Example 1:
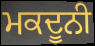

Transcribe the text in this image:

ਮਕਦੂਨੀ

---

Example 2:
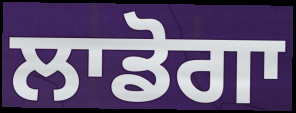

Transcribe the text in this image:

ਲਾਡੋਗਾ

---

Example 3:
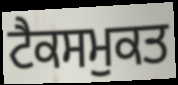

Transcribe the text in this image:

ਟੈਕਸਮੁਕਤ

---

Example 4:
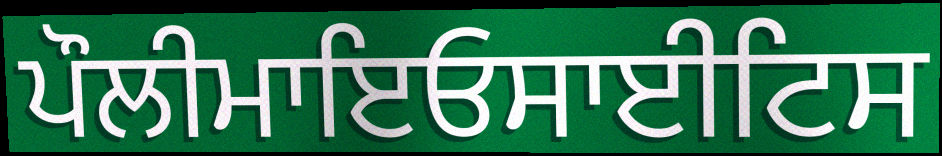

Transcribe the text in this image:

ਪੌਲੀਮਾਇਓਸਾਈਟਿਸ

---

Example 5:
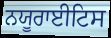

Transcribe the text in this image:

ਨਯੂਰਾਈਟਿਸ